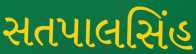
સતપાલસિંહ